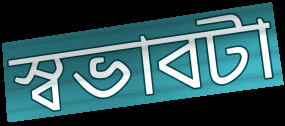
স্বভাবটা